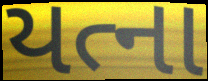
યત્ના